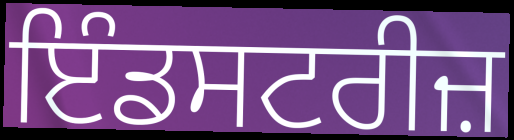
ਇੰਡਸਟਰੀਜ਼